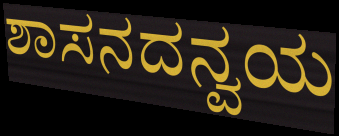
ಶಾಸನದನ್ವಯ